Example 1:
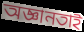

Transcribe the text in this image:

অজ্ঞানতাই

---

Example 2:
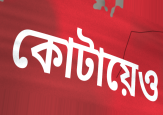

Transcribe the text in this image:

কোটায়েও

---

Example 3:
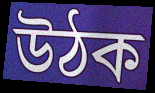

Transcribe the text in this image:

উঠক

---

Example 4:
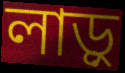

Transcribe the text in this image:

লাড়ু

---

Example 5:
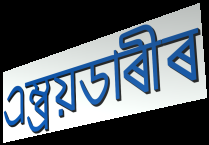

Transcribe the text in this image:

এম্ব্ৰয়ডাৰীৰ